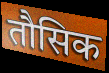
तौसिक